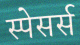
स्पेसर्स